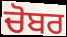
ਚੋਬਰ